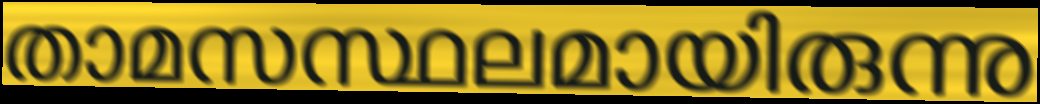
താമസസ്ഥലമായിരുന്നു